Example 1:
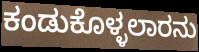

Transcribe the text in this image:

ಕಂಡುಕೊಳ್ಳಲಾರನು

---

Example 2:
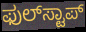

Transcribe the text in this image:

ಫುಲ್‍ಸ್ಟಾಪ್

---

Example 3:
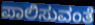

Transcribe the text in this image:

ಪಾಲಿಸುವಂತೆ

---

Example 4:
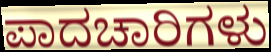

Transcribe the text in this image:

ಪಾದಚಾರಿಗಳು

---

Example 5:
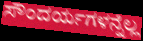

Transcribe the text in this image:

ಸೌಂದರ್ಯಗಳನ್ನೆಲ್ಲ